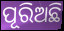
ପୂରିଅଛି